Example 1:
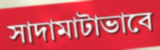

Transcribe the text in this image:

সাদামাটাভাবে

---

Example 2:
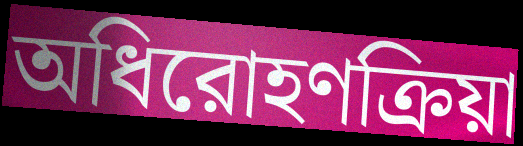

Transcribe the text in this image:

অধিরোহণক্রিয়া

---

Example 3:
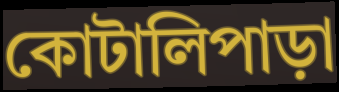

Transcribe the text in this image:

কোটালিপাড়া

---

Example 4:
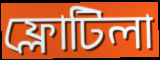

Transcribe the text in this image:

ফ্লোটিলা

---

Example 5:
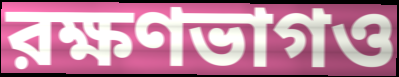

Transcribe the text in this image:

রক্ষণভাগও